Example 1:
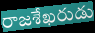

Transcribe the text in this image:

రాజశేఖరుడు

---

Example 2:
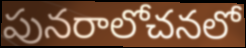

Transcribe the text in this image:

పునరాలోచనలో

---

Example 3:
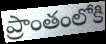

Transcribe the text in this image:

ప్రాంతంలోకి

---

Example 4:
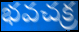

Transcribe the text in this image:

భవచక్ర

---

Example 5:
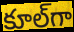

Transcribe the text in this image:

కూల్‌గా